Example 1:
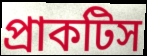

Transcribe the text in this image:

প্রাকটিস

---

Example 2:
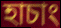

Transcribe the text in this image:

হাচাং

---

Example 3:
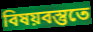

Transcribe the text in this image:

বিষয়বস্তুতে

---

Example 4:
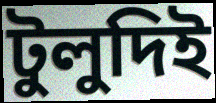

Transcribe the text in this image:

টুলুদিই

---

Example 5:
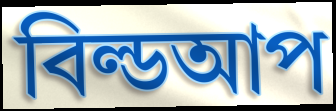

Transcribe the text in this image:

বিল্ডআপ